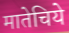
मातेचिये